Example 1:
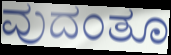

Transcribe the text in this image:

ವುದಂತೂ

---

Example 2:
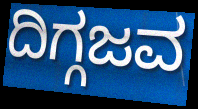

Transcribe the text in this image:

ದಿಗ್ಗಜವ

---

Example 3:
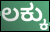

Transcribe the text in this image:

ಲಕ್ಕು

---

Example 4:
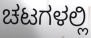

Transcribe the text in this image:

ಚಟಗಳಲ್ಲಿ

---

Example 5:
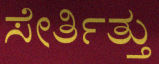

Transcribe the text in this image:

ಸೇರ್ತಿತ್ತು